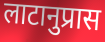
लाटानुप्रास